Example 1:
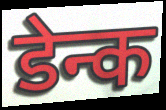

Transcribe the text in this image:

डेन्क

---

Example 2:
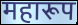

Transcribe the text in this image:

महारूप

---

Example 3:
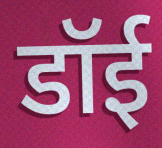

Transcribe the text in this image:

डॉई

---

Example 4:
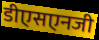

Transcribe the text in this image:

डीएसएनजी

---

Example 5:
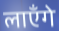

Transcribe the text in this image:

लाएँगे